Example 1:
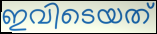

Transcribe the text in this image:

ഇവിടെയത്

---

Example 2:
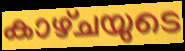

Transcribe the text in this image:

കാഴ്‌ചയുടെ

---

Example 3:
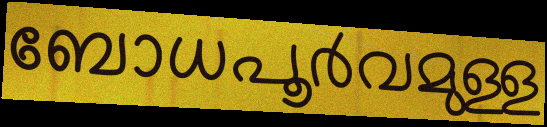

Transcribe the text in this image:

ബോധപൂർവമുള്ള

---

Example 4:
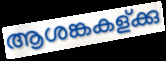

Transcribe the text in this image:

ആശങ്കകള്ക്കു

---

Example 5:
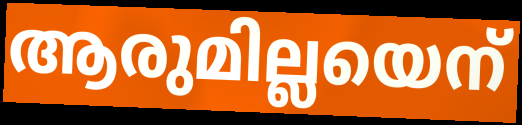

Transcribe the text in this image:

ആരുമില്ലയെന്